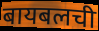
बायबलची